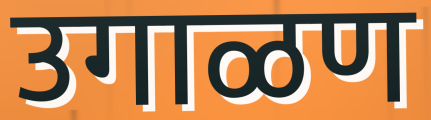
उगाळण